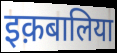
इक़बालिया